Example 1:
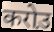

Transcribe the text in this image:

करोउ़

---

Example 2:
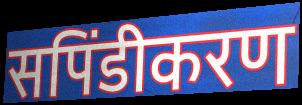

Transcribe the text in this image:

सपिंडीकरण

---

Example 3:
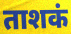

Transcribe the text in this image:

ताशकं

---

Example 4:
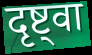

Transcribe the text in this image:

दृष्ट्वा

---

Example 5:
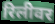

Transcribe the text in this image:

रिलीवर